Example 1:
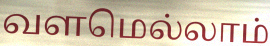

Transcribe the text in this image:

வளமெல்லாம்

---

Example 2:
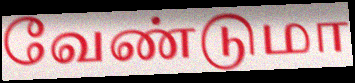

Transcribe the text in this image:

வேண்டுமா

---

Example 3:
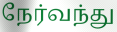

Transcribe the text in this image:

நேர்வந்து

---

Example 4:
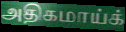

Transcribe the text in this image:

அதிகமாய்க்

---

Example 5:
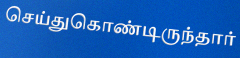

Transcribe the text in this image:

செய்துகொண்டிருந்தார்